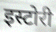
इस्टोरी